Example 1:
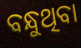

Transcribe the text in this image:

ବନ୍ଧୁଥିବା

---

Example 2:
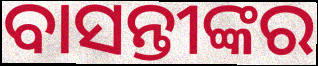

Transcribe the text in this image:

ବାସନ୍ତୀଙ୍କର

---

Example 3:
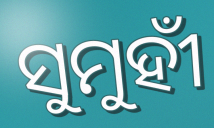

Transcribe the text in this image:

ସୁମୁହୀଁ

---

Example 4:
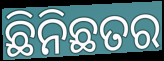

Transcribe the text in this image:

ଛିନିଛତର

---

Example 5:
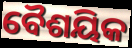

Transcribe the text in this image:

ବୈଶୟିକ